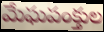
మేఘపంక్తుల